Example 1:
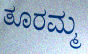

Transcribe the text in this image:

ತೂರಮ್ಮ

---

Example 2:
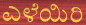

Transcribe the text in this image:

ಎಳೆಯಿರಿ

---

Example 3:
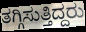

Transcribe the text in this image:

ತಗ್ಗಿಸುತ್ತಿದ್ದರು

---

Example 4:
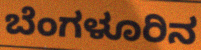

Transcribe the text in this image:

ಬೆಂಗಳೂರಿನ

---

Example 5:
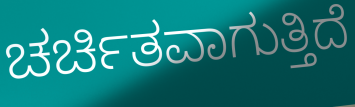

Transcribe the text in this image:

ಚರ್ಚಿತವಾಗುತ್ತಿದೆ